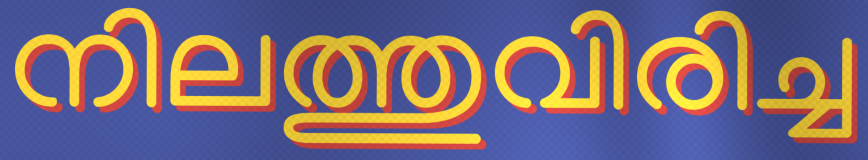
നിലത്തുവിരിച്ച